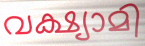
വക്ഷ്യാമി